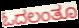
ಓದಲಂತೂ